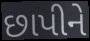
છાપીને